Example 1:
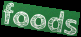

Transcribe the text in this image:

foods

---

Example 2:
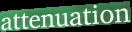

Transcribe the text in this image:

attenuation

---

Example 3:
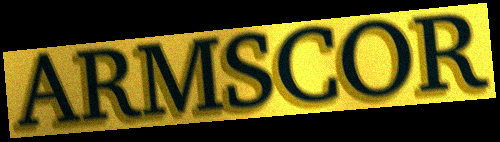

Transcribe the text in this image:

ARMSCOR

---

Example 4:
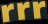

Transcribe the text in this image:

rrr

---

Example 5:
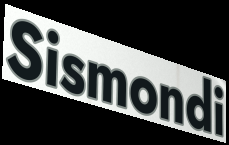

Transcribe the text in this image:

Sismondi